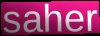
saher